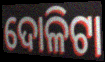
ଦୋଳିଟା